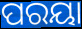
ପରୟା